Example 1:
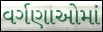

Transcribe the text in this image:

વર્ગણાઓમાં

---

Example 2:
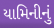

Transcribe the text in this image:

યામિનીનું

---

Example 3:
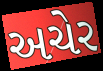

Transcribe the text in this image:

અચેર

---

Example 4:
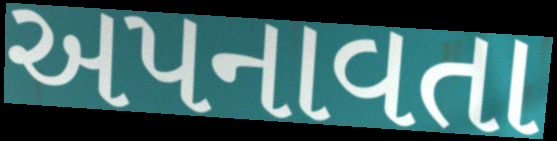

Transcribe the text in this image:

અપનાવતા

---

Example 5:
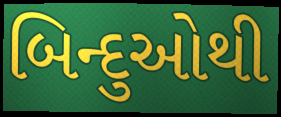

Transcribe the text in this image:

બિન્દુઓથી